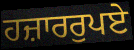
ਹਜ਼ਾਰਰੁਪਏ